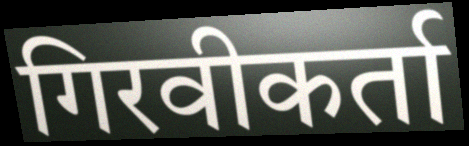
गिरवीकर्ता